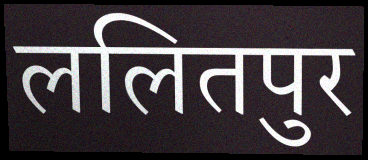
ललितपुर